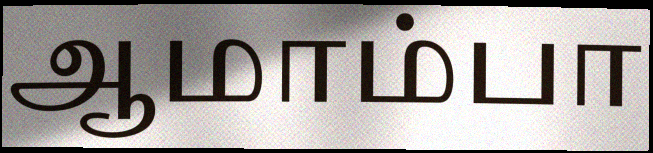
ஆமாம்பா